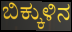
ಬಿಕ್ಕುಳಿನ